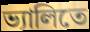
ভ্যালিতে